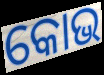
କୋଭ